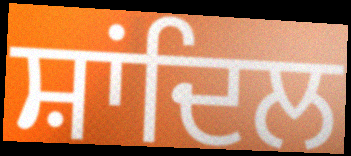
ਸ਼ਾਂਦਿਲ